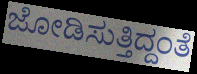
ಜೋಡಿಸುತ್ತಿದ್ದಂತೆ